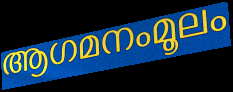
ആഗമനംമൂലം